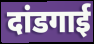
दांडगाई